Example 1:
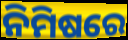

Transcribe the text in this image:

ନିମିଷରେ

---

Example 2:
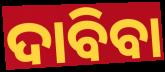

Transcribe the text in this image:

ଦାବିବା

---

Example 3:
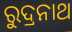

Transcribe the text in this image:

ରୁଦ୍ରନାଥ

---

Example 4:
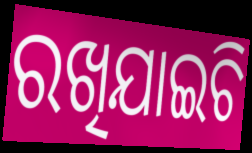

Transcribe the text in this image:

ରଖିଯାଇଚି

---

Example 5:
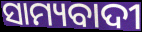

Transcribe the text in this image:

ସାମ୍ୟବାଦୀ